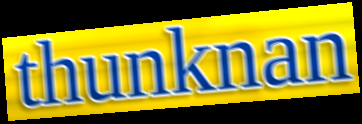
thunknan